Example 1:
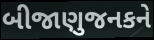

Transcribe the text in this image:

બીજાણુજનકને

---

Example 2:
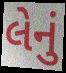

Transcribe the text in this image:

લેનું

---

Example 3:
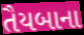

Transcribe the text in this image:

તૈયબાના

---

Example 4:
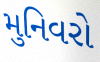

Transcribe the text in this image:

મુનિવરો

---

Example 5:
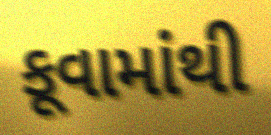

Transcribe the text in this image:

કૂવામાંથી